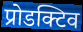
प्रोडक्टिव